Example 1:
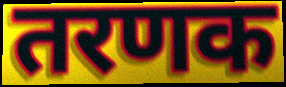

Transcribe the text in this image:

तरणक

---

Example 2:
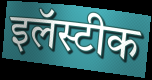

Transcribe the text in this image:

इलॅस्टीक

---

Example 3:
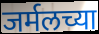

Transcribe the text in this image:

जर्मलच्या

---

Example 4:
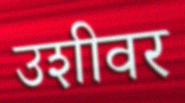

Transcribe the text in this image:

उशीवर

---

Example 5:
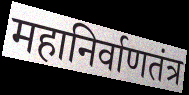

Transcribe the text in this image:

महानिर्वाणतंत्र